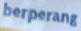
berperang